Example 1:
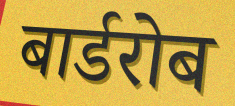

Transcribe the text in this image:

बार्डरोब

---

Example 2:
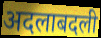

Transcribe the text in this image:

अदलाबदली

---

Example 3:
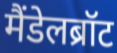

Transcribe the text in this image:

मैंडेलब्रॉट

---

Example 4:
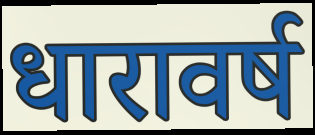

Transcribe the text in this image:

धारावर्ष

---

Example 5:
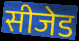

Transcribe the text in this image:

सीजेड